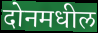
दोनमधील